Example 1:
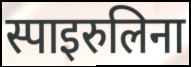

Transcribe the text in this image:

स्पाइरुलिना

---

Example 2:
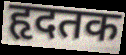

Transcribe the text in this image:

हृदतक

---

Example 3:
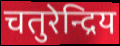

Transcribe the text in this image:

चतुरेन्द्रिय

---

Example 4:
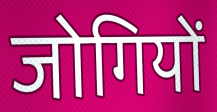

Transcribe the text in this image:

जोगियों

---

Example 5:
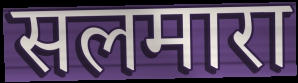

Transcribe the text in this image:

सलमारा